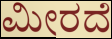
ಮೀರದೆ